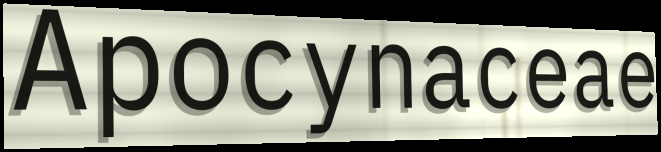
Apocynaceae